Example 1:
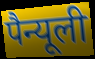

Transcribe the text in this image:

पैन्यूली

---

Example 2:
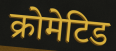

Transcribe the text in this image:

क्रोमेटिड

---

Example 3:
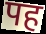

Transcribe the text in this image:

पह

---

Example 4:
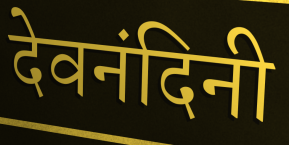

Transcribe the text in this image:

देवनंदिनी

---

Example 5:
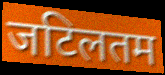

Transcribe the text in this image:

जटिलतम